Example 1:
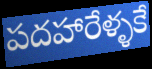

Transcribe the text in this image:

పదహారేళ్ళకే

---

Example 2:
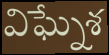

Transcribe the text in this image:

విఘ్నేశ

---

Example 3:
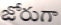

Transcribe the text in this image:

జోరుగా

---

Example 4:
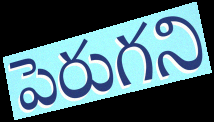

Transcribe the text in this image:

పెరుగని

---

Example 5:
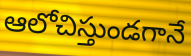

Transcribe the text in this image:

ఆలోచిస్తుండగానే